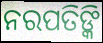
ନରପତିଙ୍କି